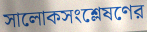
সালোকসংশ্লেষণের